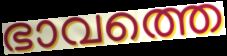
ഭാവത്തെ